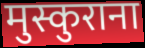
मुस्कुराना